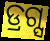
ଡ୍ରଗ୍ସ